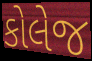
કોલેજ